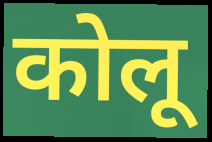
कोलू